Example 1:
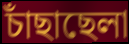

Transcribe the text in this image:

চাঁছাছেলা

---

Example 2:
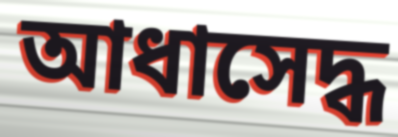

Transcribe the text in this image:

আধাসেদ্ধ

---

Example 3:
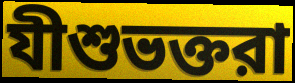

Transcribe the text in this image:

যীশুভক্তরা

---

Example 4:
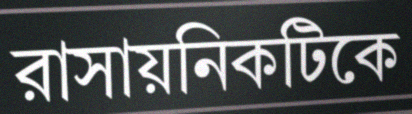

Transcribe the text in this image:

রাসায়নিকটিকে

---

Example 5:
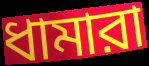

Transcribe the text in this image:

ধামারা